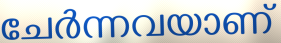
ചേർന്നവയാണ്